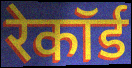
रेकॉर्ड